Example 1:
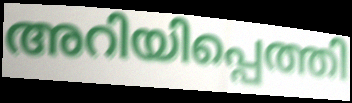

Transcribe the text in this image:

അറിയിപ്പെത്തി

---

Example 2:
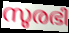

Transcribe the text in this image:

സുരഭി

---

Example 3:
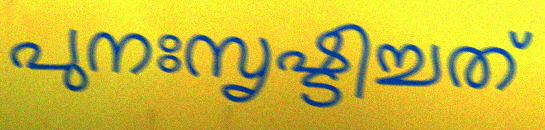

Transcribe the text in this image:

പുനഃസൃഷ്ടിച്ചത്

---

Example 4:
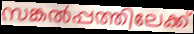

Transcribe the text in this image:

സങ്കൽപ്പത്തിലേക്ക്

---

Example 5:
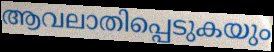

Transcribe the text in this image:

ആവലാതിപ്പെടുകയും